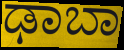
ಢಾಬಾ